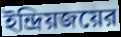
ইন্দ্রিয়জয়ের